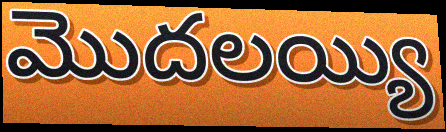
మొదలయ్యి